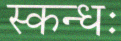
स्कन्धः